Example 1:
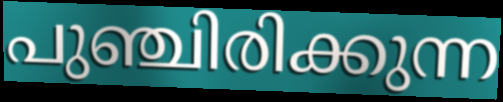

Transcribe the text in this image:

പുഞ്ചിരിക്കുന്ന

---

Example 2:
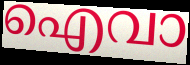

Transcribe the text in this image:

ഐവാ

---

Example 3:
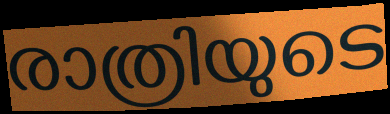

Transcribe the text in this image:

രാത്രിയുടെ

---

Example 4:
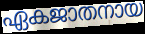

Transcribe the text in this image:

ഏകജാതനായ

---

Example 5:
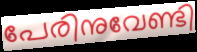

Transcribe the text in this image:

പേരിനുവേണ്ടി